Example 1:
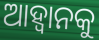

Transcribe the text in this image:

ଆହ୍ବାନକୁ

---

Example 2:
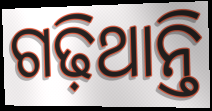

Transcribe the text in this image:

ଗଢ଼ିଥାନ୍ତି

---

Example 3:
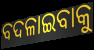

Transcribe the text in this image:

ବଦଳାଇବାକୁ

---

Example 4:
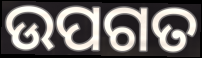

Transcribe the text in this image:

ଉପଗତ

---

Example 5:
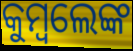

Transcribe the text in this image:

କୁମ୍ବଲେଙ୍କ